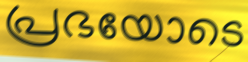
പ്രഭയോടെ